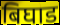
बिघाड